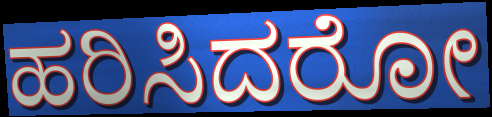
ಹರಿಸಿದರೋ